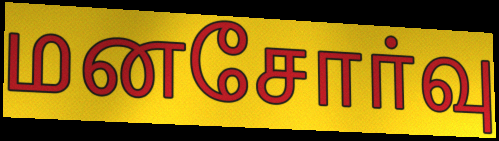
மனசோர்வு